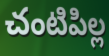
చంటిపిల్ల